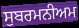
ਸੁਬਰਮਨੀਅਮ